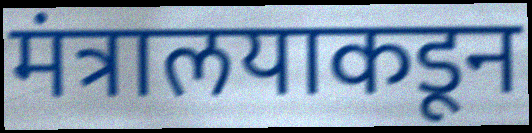
मंत्रालयाकडून